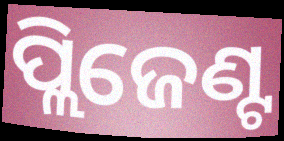
ପ୍ଲିଜେଣ୍ଟ